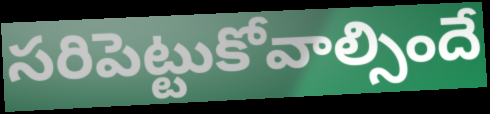
సరిపెట్టుకోవాల్సిందే